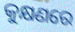
କୁକ୍ଷଣରେ